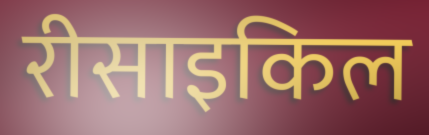
रीसाइकिल